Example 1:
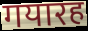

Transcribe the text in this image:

गयारह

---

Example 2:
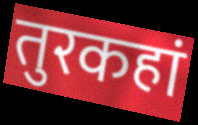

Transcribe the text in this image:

तुरकहां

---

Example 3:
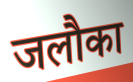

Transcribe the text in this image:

जलौका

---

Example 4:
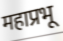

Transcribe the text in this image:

महाप्रभू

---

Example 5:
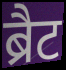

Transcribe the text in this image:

ब्रैट